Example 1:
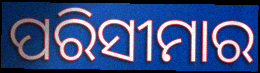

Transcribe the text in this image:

ପରିସୀମାର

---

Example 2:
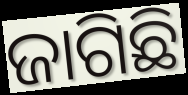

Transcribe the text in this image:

ଜାଗିଛି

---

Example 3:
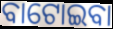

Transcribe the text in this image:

ବାଟୋଇବା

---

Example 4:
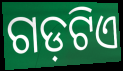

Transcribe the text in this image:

ଗଡ଼ଟିଏ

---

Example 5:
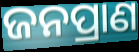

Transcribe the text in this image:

ଜନପ୍ରାଣ